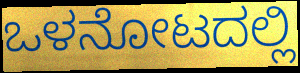
ಒಳನೋಟದಲ್ಲಿ